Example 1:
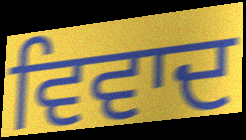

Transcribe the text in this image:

ਵਿਵਾਦ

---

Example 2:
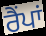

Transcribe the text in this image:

ਰੈਂਪਾਂ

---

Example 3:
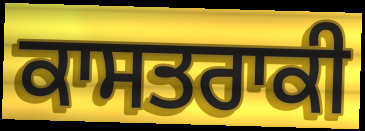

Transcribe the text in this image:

ਕਾਸਤਰਾਕੀ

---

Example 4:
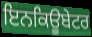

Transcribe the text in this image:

ਇਨਕਿਊਬੇਟਰ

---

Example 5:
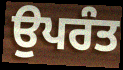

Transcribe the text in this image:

ਉਪਰੰਤ